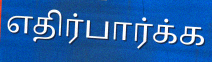
எதிர்பார்க்க